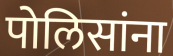
पोलिसांना